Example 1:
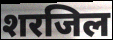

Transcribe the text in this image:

शरजिल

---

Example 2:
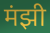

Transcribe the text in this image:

मंझी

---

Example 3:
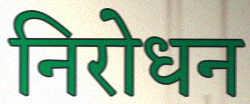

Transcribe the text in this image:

निरोधन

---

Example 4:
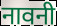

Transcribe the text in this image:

नावनी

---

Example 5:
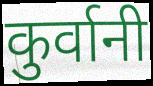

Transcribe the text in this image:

कुर्वानी